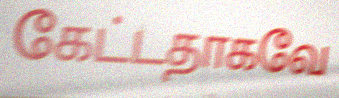
கேட்டதாகவே